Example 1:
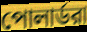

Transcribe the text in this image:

পোলার্ডরা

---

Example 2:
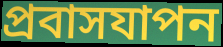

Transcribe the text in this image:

প্রবাসযাপন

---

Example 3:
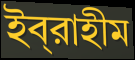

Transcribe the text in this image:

ইব্‌রাহীম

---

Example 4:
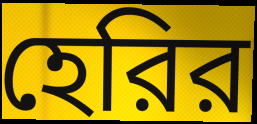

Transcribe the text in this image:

হেরির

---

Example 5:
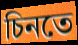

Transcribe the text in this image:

চিনতে